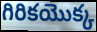
గిరికయొక్క